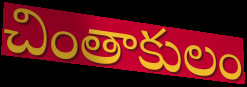
చింతాకులం